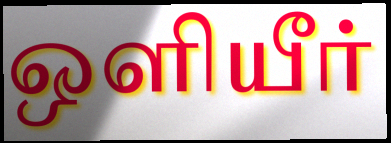
ஒளியீர்